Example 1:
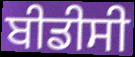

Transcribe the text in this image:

ਬੀਡੀਸੀ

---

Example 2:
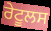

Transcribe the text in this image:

ਰੇਟੂਲਸ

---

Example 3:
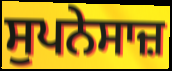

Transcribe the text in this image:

ਸੁਪਨੇਸਾਜ਼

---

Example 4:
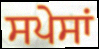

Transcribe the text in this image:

ਸਪੇਸਾਂ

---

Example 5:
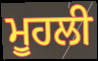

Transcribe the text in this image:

ਮੂਹਲੀ